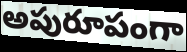
అపురూపంగా